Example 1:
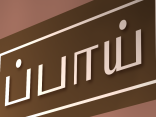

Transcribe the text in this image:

ப்பாய்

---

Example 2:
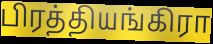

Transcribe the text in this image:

பிரத்தியங்கிரா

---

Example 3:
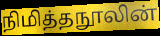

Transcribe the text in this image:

நிமித்தநூலின்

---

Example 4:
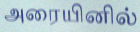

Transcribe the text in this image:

அரையினில்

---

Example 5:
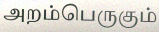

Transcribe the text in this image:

அறம்பெருகும்